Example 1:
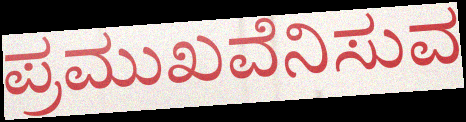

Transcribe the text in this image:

ಪ್ರಮುಖವೆನಿಸುವ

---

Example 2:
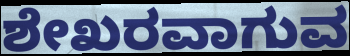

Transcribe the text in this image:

ಶೇಖರವಾಗುವ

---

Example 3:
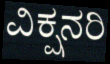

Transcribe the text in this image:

ವಿಕ್ಷನರಿ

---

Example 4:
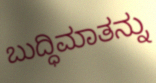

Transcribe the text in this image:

ಬುದ್ಧಿಮಾತನ್ನು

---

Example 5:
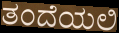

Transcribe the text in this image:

ತಂದೆಯಲಿ